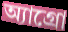
অ্যাগ্রো